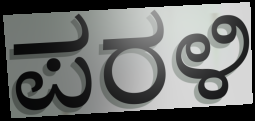
ಪರಳಿ